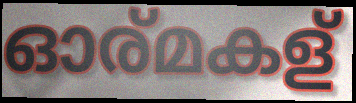
ഓര്മകള്